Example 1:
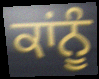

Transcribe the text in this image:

ਕਾਂਨੂੰ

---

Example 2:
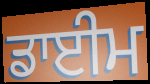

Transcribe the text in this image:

ਡਾਈਮ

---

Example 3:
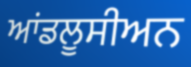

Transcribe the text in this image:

ਆਂਡਲੂਸੀਅਨ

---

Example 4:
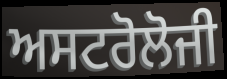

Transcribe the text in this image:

ਅਸਟਰੋਲੋਜੀ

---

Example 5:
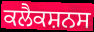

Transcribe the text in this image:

ਕਲੈਕਸ਼ਨਸ